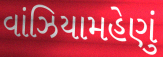
વાંઝિયામહેણું